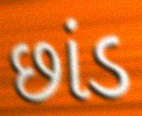
છાંડ